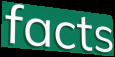
facts